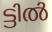
ട്ടിൽ